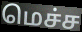
மெச்ச